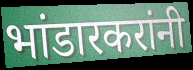
भांडारकरांनी